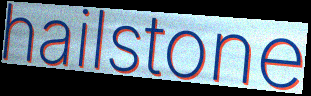
hailstone